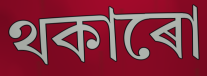
থকাৰো